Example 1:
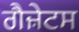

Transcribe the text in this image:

ਗੈਜ਼ੇਟਸ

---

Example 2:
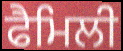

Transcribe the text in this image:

ਫੈਮਿਲੀ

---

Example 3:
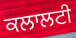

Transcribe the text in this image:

ਕਲਾਲਟੀ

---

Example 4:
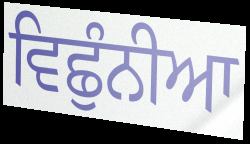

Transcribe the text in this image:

ਵਿਛੁੰਨੀਆ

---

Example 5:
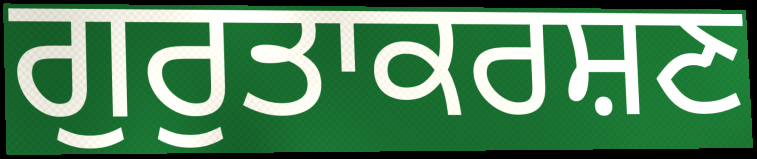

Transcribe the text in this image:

ਗੁਰੁਤਾਕਰਸ਼ਣ